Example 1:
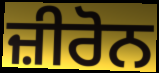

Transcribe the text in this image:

ਜ਼ੀਰੋਨ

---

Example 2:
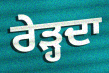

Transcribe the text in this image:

ਰੇੜ੍ਹਦਾ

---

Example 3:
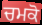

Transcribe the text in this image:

ਚਮਕੋ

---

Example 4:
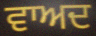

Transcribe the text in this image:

ਵਾਅਦ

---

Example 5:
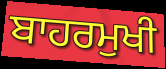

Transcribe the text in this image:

ਬਾਹਰਮੁਖੀ